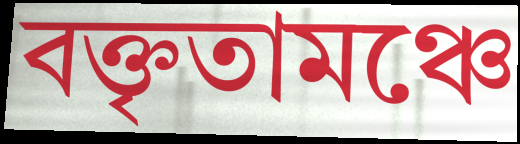
বক্তৃতামঞ্চে